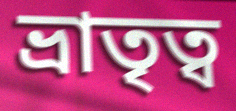
ভ্রাতৃত্ব